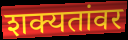
शक्यतांवर